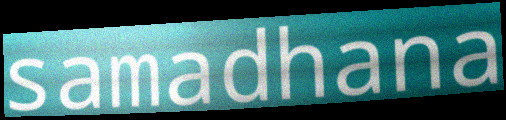
samadhana